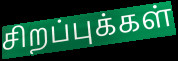
சிறப்புக்கள்